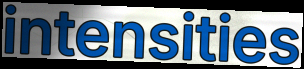
intensities